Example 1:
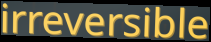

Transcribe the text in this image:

irreversible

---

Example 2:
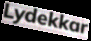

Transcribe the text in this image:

Lydekkar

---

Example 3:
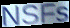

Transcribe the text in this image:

NSFs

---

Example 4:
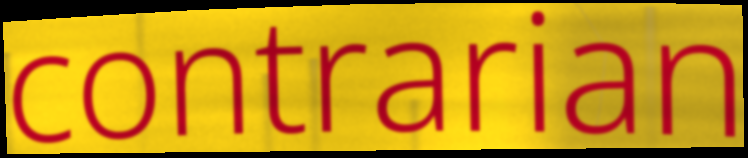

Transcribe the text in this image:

contrarian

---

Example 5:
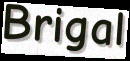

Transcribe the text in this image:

Brigal